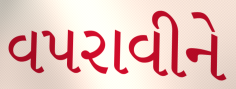
વપરાવીને